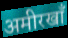
अमीरखाँ